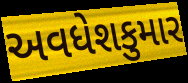
અવધેશકુમાર